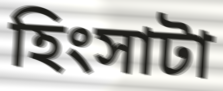
হিংসাটা